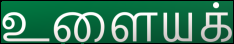
உளையக்